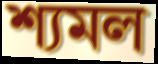
শ্যমল